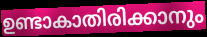
ഉണ്ടാകാതിരിക്കാനും